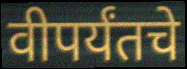
वीपर्यंतचे